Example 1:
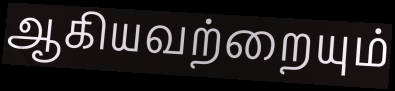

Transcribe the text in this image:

ஆகியவற்றையும்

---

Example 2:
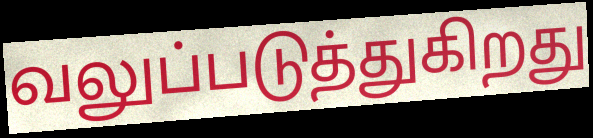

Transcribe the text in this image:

வலுப்படுத்துகிறது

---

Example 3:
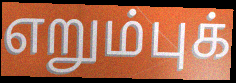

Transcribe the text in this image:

எறும்புக்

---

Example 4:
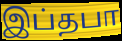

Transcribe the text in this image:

இப்தபா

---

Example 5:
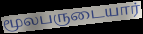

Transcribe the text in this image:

மூலபருடையார்